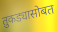
तुकड्यासोबत